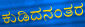
ಕುಡಿದನಂತರ